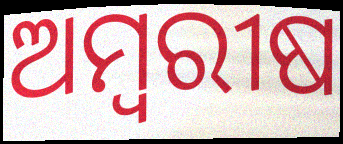
ଅମ୍ବରୀଷ